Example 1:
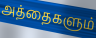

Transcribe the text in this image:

அத்தைகளும்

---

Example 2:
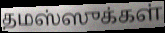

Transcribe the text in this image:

தமஸ்ஸுக்கள்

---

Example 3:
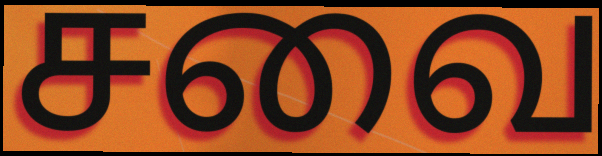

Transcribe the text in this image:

சவை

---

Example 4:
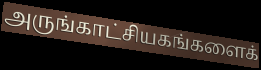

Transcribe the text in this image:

அருங்காட்சியகங்களைக்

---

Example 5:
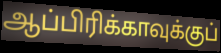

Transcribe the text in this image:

ஆப்பிரிக்காவுக்குப்